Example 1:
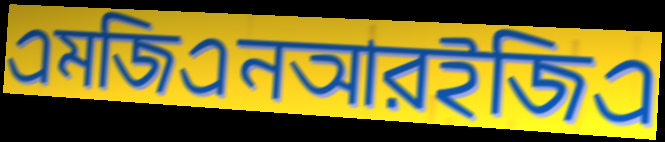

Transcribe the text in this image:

এমজিএনআরইজিএ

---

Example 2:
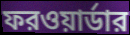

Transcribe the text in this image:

ফরওয়ার্ডার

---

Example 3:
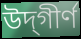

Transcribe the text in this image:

উদ্‌গীর্ণ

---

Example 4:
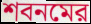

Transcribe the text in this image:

শবনমের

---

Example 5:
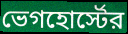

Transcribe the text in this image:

ভেগহোর্স্টের